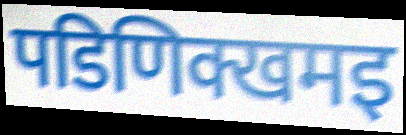
पडिणिक्खमइ